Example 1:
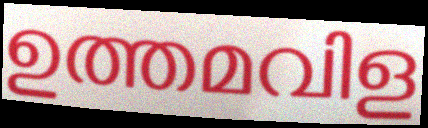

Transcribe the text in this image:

ഉത്തമവിള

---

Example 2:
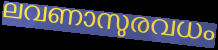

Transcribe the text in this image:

ലവണാസുരവധം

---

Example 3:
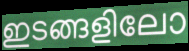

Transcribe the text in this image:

ഇടങ്ങളിലോ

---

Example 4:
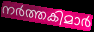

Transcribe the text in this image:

നർത്തകിമാർ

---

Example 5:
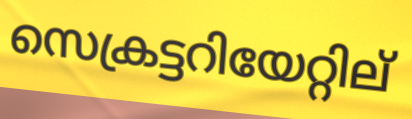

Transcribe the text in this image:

സെക്രട്ടറിയേറ്റില്